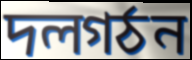
দলগঠন